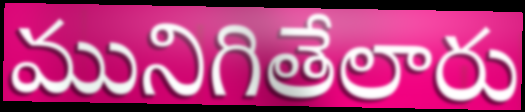
మునిగితేలారు